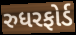
રુધરફોર્ડ